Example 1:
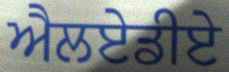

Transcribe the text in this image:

ਐਲਏਡੀਏ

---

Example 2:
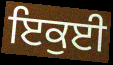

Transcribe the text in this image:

ਇਕੁਈ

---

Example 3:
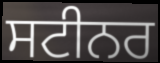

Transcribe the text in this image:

ਸਟੀਨਰ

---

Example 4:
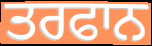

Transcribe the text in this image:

ਤਰਫਾਨ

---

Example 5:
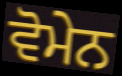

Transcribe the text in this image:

ਵੋਮੇਨ